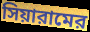
সিয়ারামের